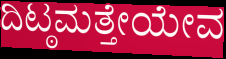
ದಿಟ್ಠಮತ್ತೇಯೇವ